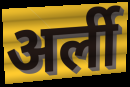
अर्ली